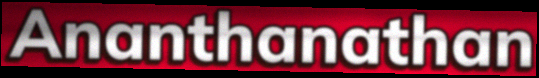
Ananthanathan